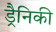
ड्रैनिकी